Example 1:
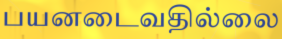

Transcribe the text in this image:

பயனடைவதில்லை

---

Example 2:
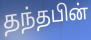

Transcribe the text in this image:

தந்தபின்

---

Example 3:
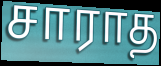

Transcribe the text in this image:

சாராத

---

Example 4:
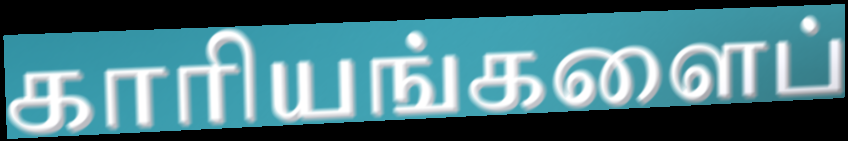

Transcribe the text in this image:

காரியங்களைப்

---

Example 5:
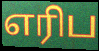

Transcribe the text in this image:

எரிப